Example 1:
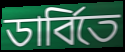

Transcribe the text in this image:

ডার্বিতে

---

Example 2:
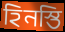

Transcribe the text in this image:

হিনস্তি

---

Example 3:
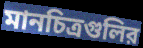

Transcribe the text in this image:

মানচিত্রগুলির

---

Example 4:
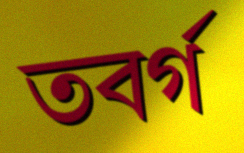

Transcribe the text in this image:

তবর্গ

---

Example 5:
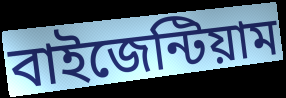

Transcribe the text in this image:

বাইজেন্টিয়াম